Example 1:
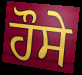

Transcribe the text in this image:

ਹੌਸੇ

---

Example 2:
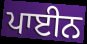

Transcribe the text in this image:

ਪਾਈਨ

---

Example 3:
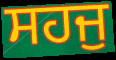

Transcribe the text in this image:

ਸਹਜੁ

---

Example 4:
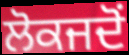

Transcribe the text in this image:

ਲੋਕਜਦੋਂ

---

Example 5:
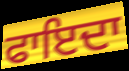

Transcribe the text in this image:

ਫਾਇਦਾ